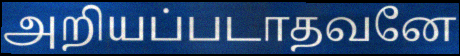
அறியப்படாதவனே